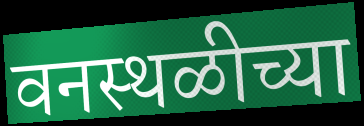
वनस्थळीच्या